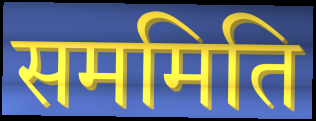
सममिति